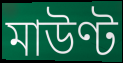
মাউণ্ট